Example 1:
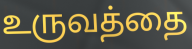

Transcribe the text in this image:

உருவத்தை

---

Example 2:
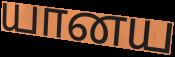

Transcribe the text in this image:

யானய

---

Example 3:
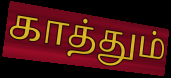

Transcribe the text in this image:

காத்தும்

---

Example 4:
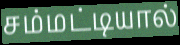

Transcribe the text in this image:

சம்மட்டியால்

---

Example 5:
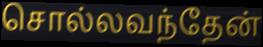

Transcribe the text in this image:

சொல்லவந்தேன்